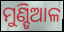
ମୁଣ୍ଡିଆଳ